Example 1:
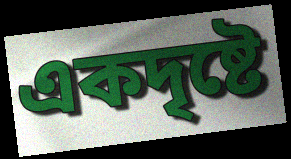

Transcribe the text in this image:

একদৃষ্টে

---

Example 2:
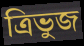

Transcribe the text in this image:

ত্রিভুজ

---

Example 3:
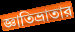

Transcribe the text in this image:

জ্ঞাতিভ্রাতার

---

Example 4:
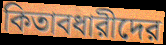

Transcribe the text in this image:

কিতাবধারীদের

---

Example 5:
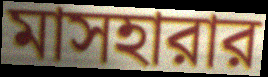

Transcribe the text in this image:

মাসহারার